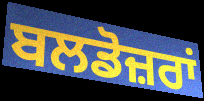
ਬਲਡੋਜ਼ਰਾਂ